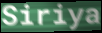
Siriya